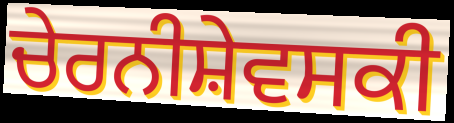
ਚੇਰਨੀਸ਼ੇਵਸਕੀ